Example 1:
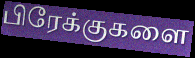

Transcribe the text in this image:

பிரேக்குகளை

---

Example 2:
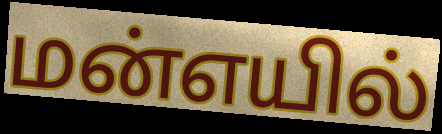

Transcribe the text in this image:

மன்எயில்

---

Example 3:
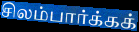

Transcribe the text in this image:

சிலம்பார்க்கக்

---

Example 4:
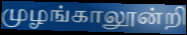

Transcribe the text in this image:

முழங்காலூன்றி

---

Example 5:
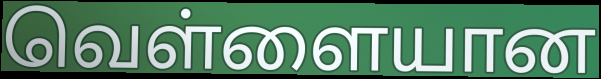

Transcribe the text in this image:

வெள்ளையான